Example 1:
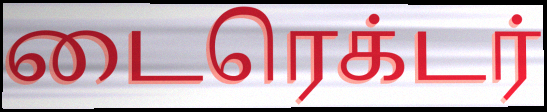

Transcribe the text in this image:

டைரெக்டர்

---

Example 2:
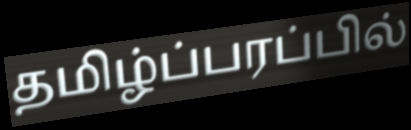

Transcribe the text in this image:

தமிழ்ப்பரப்பில்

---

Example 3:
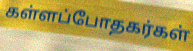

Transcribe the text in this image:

கள்ளப்போதகர்கள்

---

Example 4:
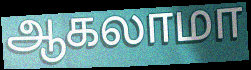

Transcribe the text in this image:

ஆகலாமா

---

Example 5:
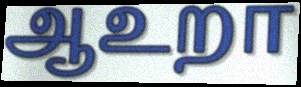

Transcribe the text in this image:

ஆஉறா